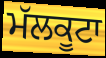
ਮੱਲਕੂਟਾ